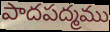
పాదపద్మము